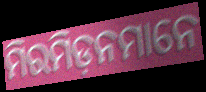
ମିରମିଡ଼ନମାନେ